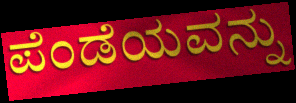
ಪೆಂಡೆಯವನ್ನು